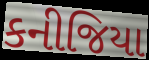
કનીજિયા